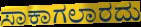
ಸಾಕಾಗಲಾರದು